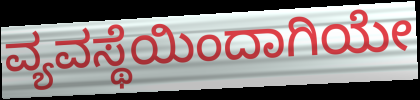
ವ್ಯವಸ್ಥೆಯಿಂದಾಗಿಯೇ